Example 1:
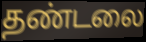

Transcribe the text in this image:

தண்டலை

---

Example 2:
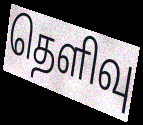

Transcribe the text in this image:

தெளிவு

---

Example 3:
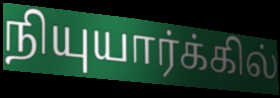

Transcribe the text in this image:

நியுயார்க்கில்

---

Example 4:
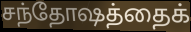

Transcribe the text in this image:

சந்தோஷத்தைக்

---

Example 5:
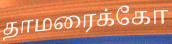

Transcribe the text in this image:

தாமரைக்கோ